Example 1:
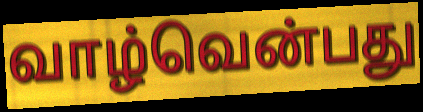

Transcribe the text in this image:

வாழ்வென்பது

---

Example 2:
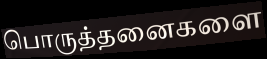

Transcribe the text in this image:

பொருத்தனைகளை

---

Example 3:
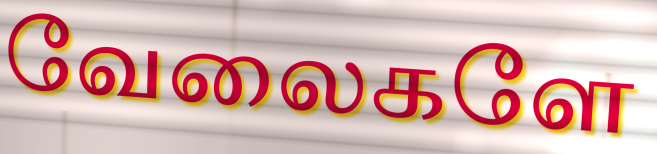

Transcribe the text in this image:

வேலைகளே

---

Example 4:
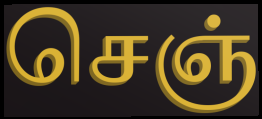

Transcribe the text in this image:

செஞ்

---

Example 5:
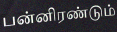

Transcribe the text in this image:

பன்னிரண்டும்